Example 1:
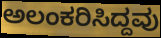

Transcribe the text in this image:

ಅಲಂಕರಿಸಿದ್ದವು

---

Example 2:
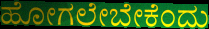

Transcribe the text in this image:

ಹೋಗಲೇಬೇಕೆಂದು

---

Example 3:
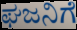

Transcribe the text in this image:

ಘಜನಿಗೆ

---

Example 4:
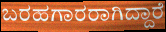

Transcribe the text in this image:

ಬರಹಗಾರರಾಗಿದ್ದಾರೆ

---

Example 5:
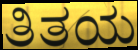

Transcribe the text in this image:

ತಿತಯ